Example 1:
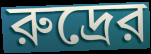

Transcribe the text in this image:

রুদ্রের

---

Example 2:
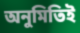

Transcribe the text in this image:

অনুমিতিই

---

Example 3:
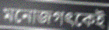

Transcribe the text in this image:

মনোজগৎকেই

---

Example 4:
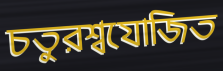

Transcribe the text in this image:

চতুরশ্বযোজিত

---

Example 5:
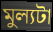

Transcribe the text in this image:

মুল্যটা